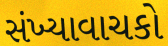
સંખ્યાવાચકો